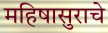
महिषासुराचे